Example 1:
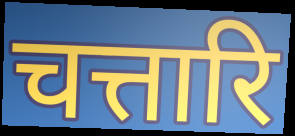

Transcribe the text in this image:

चत्तारि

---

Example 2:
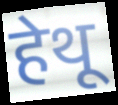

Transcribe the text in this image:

हेथू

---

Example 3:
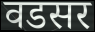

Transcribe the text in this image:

वडसर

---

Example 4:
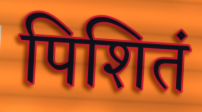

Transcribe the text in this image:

पिशितं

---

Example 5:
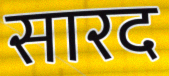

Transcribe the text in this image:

सारद